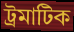
ট্রমাটিক